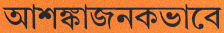
আশঙ্কাজনকভাবে